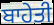
ਬਾਹੇਤੀ